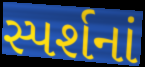
સ્પર્શનાં